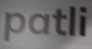
patli